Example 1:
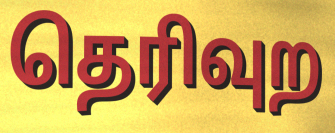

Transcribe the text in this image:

தெரிவுற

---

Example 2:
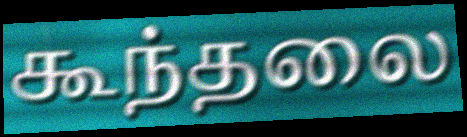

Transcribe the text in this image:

கூந்தலை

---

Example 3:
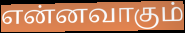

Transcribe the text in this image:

என்னவாகும்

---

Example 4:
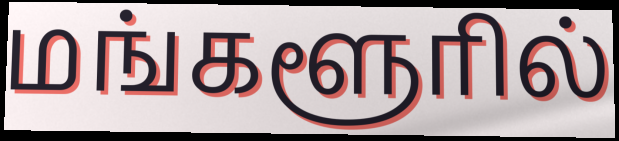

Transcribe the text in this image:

மங்களூரில்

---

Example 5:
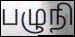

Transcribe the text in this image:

பழுநி